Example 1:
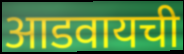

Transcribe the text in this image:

आडवायची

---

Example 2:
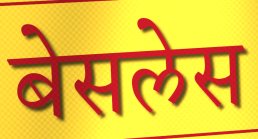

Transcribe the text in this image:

बेसलेस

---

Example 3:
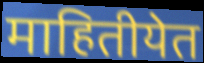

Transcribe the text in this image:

माहितीयेत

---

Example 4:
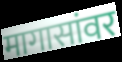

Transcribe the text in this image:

मागासांवर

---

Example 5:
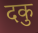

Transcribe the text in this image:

दकु